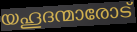
യഹൂദന്മാരോട്